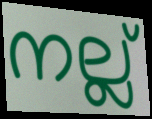
നല്ല്